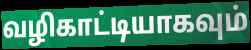
வழிகாட்டியாகவும்